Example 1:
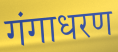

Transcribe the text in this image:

गंगाधरण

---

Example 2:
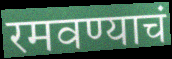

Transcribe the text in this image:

रमवण्याचं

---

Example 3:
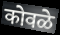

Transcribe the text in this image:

कोवळे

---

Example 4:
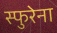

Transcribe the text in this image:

स्फुरेना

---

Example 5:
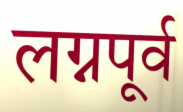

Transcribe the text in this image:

लग्नपूर्व